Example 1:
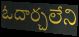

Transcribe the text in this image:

ఓదార్చలేని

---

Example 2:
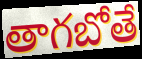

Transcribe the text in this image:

తాగబోతే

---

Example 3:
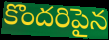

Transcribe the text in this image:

కొందరిపైన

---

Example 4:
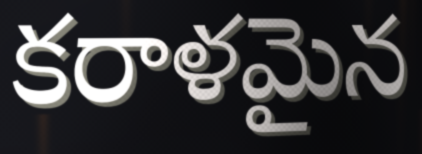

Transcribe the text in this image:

కరాళమైన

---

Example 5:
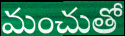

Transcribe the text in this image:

మంచుతో